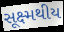
સૂક્ષ્મથીય